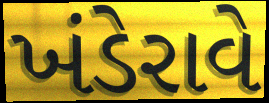
ખંડેરાવે